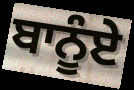
ਬਾਨੂੰਏ